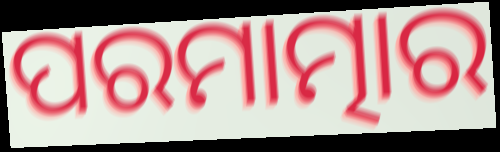
ପରମାତ୍ମାର